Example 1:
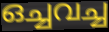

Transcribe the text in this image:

ഒച്ചവച്ച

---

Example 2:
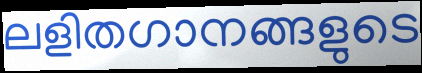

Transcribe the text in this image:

ലളിതഗാനങ്ങളുടെ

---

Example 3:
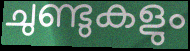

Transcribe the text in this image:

ചുണ്ടുകളും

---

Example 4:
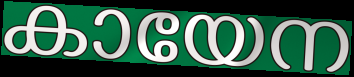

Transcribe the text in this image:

കായേന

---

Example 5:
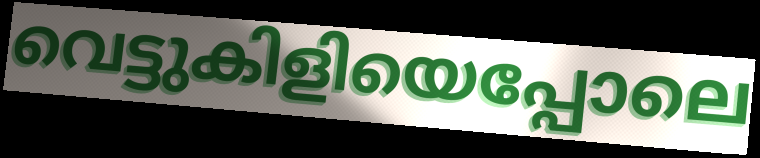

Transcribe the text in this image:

വെട്ടുകിളിയെപ്പോലെ